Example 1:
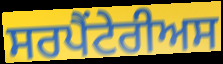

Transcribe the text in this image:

ਸਰਪੈਂਟੇਰੀਅਸ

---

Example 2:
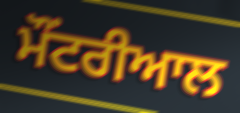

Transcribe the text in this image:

ਮੌਂਟਰੀਆਲ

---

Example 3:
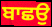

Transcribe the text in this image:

ਬਾਛਉ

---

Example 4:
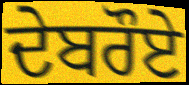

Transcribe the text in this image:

ਦੇਬਰੌਏ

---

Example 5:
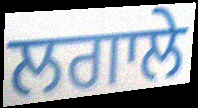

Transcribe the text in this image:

ਲਗਾਲੇ